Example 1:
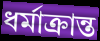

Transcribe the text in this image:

ধর্মাক্রান্ত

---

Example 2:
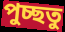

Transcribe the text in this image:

পুচ্ছতু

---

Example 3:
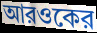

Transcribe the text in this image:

আরওকের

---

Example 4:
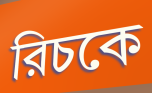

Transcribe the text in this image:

রিচকে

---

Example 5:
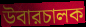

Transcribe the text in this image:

উবারচালক